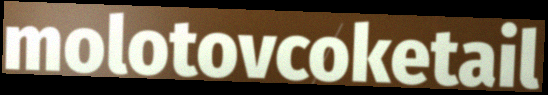
molotovcoketail